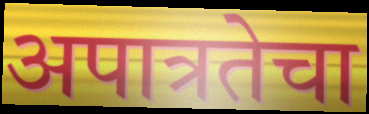
अपात्रतेचा